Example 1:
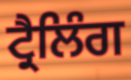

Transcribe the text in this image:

ਟ੍ਰੈਲਿੰਗ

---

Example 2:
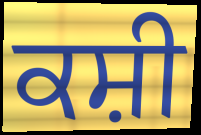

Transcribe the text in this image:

ਕਸ਼ੀ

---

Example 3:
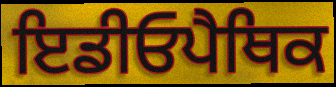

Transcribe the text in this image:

ਇਡੀਓਪੈਥਿਕ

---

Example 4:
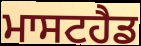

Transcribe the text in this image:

ਮਾਸਟਹੈਡ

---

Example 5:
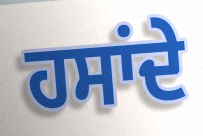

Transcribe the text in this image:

ਹਸਾਂਦੇ